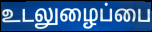
உடலுழைப்பை